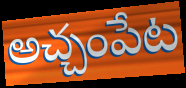
అచ్చంపేట